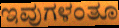
ಇವುಗಳಂತೂ